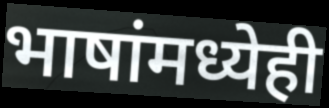
भाषांमध्येही